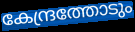
കേന്ദ്രത്തോടും